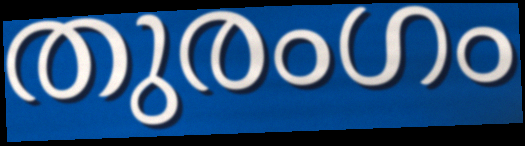
തുരംഗം